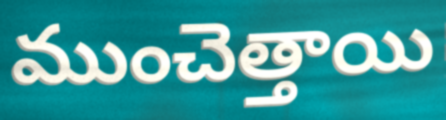
ముంచెత్తాయి